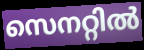
സെനറ്റിൽ